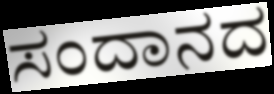
ಸಂದಾನದ